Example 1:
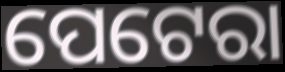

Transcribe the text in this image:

ପେଟେରା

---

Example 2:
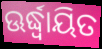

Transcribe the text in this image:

ଊର୍ଦ୍ଧ୍ୱାୟିତ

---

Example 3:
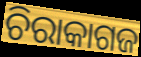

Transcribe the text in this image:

ଚିରାକାଗଜ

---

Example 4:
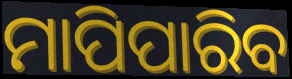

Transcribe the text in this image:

ମାପିପାରିବ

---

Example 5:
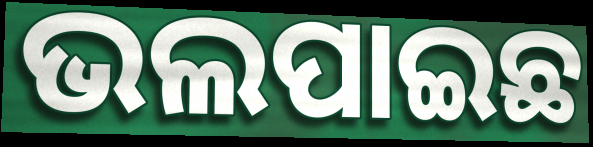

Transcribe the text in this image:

ଭଲପାଇଛ